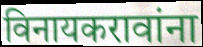
विनायकरावांना